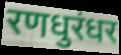
रणधुरंधर